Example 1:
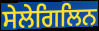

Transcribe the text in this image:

ਸੇਲੇਗਿਲਿਨ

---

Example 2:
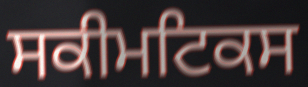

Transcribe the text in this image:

ਸਕੀਮਟਿਕਸ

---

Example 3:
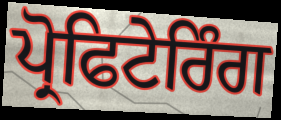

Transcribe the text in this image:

ਪ੍ਰੋਫਿਟੇਰਿੰਗ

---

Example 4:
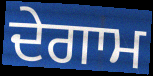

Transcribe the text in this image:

ਦੇਗਾਮ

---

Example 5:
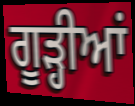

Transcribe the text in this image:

ਗੂੜ੍ਹੀਆਂ